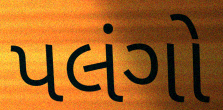
પલંગો